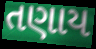
તણાય